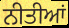
ਨੀਤੀਆਂ